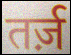
तर्ज़